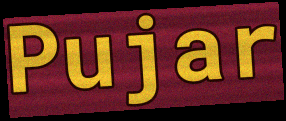
Pujar